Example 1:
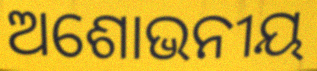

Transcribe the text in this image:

ଅଶୋଭନୀୟ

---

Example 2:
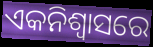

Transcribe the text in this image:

ଏକନିଶ୍ୱାସରେ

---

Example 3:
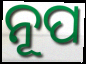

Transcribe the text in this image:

ନୂପ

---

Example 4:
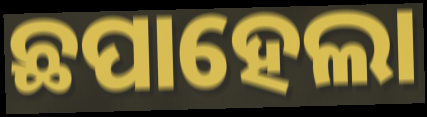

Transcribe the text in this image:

ଛପାହେଲା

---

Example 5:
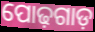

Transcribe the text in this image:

ପୋଢ଼ଗାଡ଼